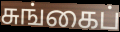
சுங்கைப்